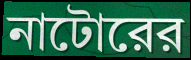
নাটোরের